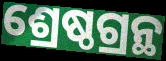
ଶ୍ରେଷ୍ଠଗ୍ରନ୍ଥ